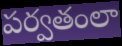
పర్వతంలా